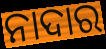
ନାଦାର